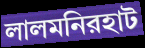
লালমনিরহাট